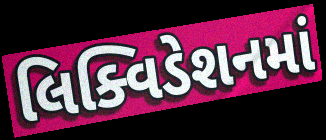
લિક્વિડેશનમાં